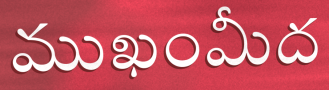
ముఖంమీద